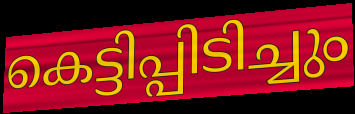
കെട്ടിപ്പിടിച്ചും